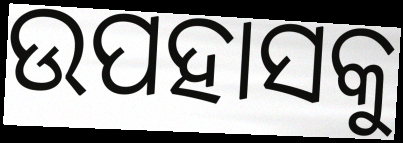
ଉପହାସକୁ